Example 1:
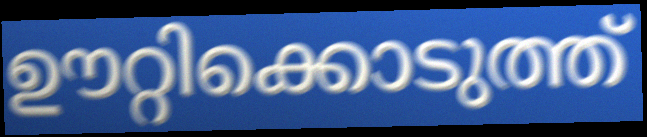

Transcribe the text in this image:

ഊറ്റിക്കൊടുത്ത്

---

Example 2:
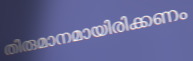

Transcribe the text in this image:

തീരുമാനമായിരിക്കണം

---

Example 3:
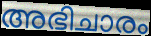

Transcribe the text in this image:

അഭിചാരം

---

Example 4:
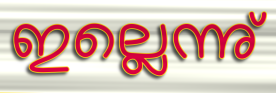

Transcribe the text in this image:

ഇല്ലെന്നു്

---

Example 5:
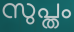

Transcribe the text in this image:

സുപ്തം